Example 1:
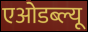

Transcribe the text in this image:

एओडब्ल्यू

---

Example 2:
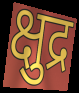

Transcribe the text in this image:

क्षुद्र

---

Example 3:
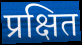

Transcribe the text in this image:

प्रक्षित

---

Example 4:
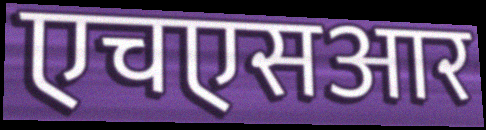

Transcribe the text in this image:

एचएसआर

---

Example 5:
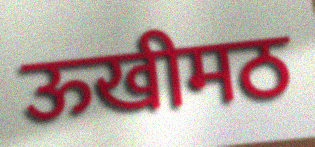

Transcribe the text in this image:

ऊखीमठ